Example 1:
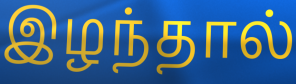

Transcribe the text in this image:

இழந்தால்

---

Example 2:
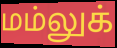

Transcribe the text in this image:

மம்லுக்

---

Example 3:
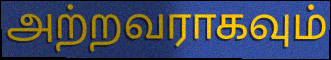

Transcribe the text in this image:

அற்றவராகவும்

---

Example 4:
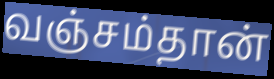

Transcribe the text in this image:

வஞ்சம்தான்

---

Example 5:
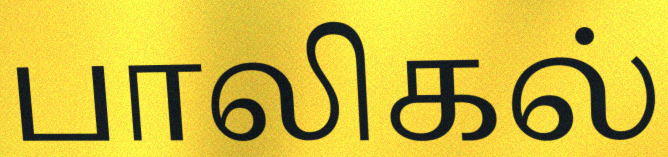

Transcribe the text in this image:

பாலிகல்